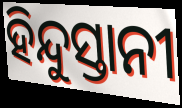
ହିନ୍ଦୁସ୍ତାନୀ